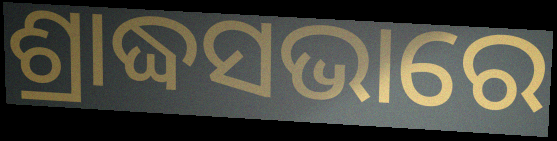
ଶ୍ରାଦ୍ଧସଭାରେ